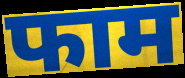
फाम